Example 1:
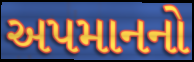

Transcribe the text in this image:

અપમાનનો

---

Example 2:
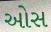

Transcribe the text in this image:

ઓસ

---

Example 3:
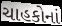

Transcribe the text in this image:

ચાહકોનાં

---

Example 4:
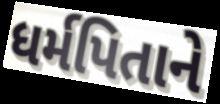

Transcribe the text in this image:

ધર્મપિતાને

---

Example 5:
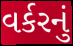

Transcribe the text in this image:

વર્કરનું